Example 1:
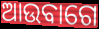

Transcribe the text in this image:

ଆଉବାଗେ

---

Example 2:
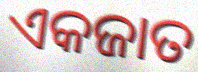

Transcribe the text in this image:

ଏକଜାତ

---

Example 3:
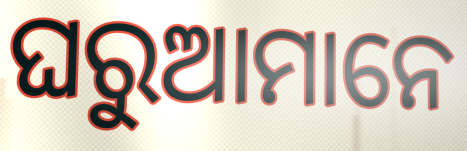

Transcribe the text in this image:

ଘରୁଆମାନେ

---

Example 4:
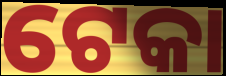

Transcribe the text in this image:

ଟେକା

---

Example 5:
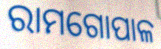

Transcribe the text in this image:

ରାମଗୋପାଳ